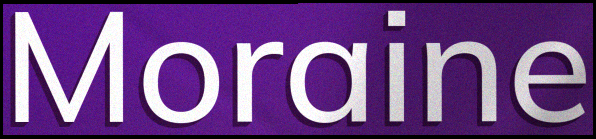
Moraine